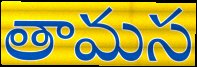
తామస